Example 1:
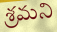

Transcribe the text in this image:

శ్రమని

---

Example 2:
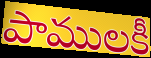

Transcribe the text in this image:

పాములకీ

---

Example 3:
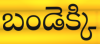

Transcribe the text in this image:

బండెక్కి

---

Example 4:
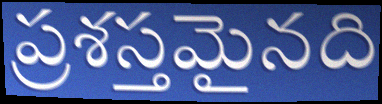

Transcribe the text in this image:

ప్రశస్తమైనది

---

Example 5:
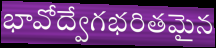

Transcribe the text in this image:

భావోద్వేగభరితమైన